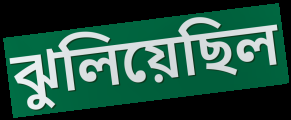
ঝুলিয়েছিল